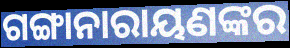
ଗଙ୍ଗାନାରାୟଣଙ୍କର